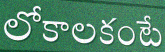
లోకాలకంటే